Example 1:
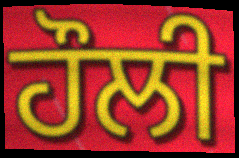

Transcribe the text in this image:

ਹੌਲੀ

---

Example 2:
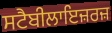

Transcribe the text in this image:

ਸਟੈਬੀਲਾਇਜ਼ਰਜ਼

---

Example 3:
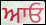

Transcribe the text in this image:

ਆਓ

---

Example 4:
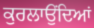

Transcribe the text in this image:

ਕੁਰਲਾਉਂਦਿਆਂ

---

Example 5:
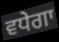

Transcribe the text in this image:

ਵਧੇਗਾ